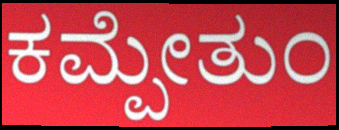
ಕಮ್ಪೇತುಂ